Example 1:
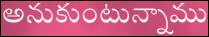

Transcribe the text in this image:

అనుకుంటున్నాము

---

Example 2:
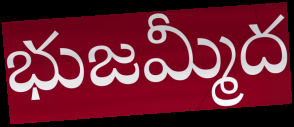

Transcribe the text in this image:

భుజమ్మీద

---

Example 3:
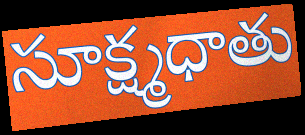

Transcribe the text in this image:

సూక్ష్మధాతు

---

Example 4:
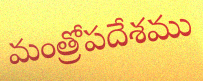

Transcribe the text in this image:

మంత్రోపదేశము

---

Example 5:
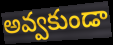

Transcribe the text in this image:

అవ్వకుండా